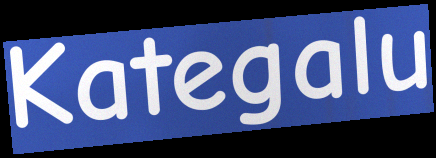
Kategalu